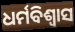
ଧର୍ମବିଶ୍ଵାସ